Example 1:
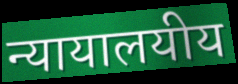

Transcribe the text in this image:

न्यायालयीय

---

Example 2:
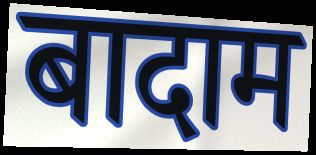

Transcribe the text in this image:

बादाम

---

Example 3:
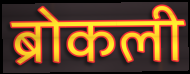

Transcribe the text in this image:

ब्रोकली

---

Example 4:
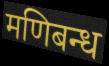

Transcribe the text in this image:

मणिबन्ध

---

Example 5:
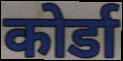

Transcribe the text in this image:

कोर्डा